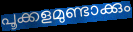
പൂക്കളമുണ്ടാക്കും